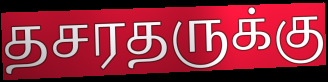
தசரதருக்கு